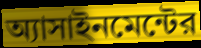
অ্যাসাইনমেন্টের